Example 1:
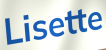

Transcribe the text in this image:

Lisette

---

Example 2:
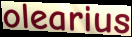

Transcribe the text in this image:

olearius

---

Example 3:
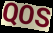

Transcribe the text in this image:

QOS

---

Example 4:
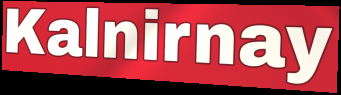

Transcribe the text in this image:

Kalnirnay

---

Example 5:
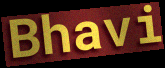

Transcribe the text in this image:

Bhavi